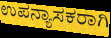
ಉಪನ್ಯಾಸಕರಾಗಿ